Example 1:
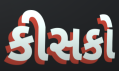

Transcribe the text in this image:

કીસકો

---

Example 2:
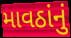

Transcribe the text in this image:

માવઠાંનું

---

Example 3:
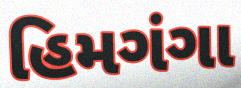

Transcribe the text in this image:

હિમગંગા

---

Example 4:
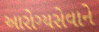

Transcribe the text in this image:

આરોગ્યસેવાને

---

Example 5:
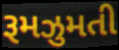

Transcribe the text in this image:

રૂમઝુમતી